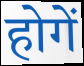
होगें